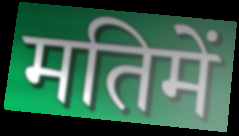
मतिमें